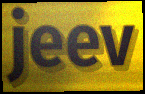
jeev